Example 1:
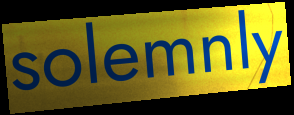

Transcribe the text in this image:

solemnly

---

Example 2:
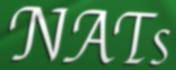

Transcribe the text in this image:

NATs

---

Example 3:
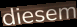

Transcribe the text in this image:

diesem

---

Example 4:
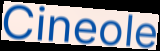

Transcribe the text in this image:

Cineole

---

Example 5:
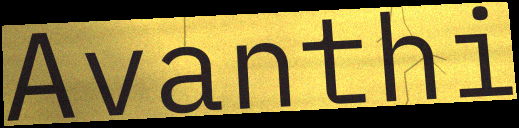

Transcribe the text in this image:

Avanthi